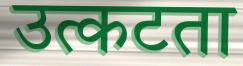
उत्कटता